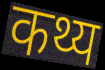
कथ्य